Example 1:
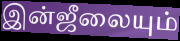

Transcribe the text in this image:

இன்ஜீலையும்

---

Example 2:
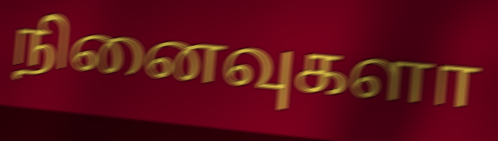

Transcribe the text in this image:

நினைவுகளா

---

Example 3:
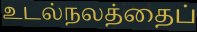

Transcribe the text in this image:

உடல்நலத்தைப்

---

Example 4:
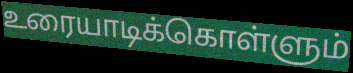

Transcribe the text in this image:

உரையாடிக்கொள்ளும்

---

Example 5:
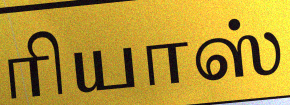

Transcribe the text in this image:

ரியாஸ்